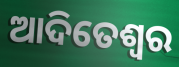
ଆଦିତେଶ୍ଵର